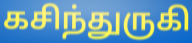
கசிந்துருகி